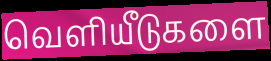
வெளியீடுகளை